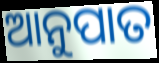
ଆନୁପାତ